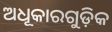
ଅଧୂକାରଗୁଡ଼ିକ